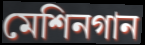
মেশিনগান